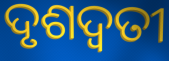
ଦୃଶଦ୍ୱତୀ